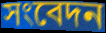
সংবেদন